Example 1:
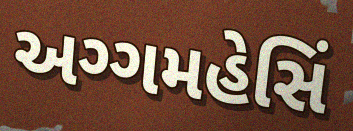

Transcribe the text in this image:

અગ્ગમહેસિં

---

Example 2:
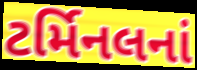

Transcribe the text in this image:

ટર્મિનલનાં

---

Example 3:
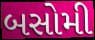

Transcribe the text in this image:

બસોમી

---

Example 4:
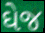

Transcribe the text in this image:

ઘેજ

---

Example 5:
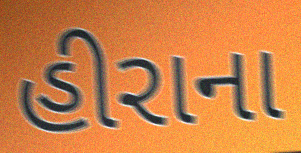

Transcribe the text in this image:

હીરાના